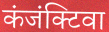
कंजंक्टिवा